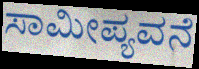
ಸಾಮೀಪ್ಯವನೆ